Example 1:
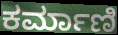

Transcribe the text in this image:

ಕರ್ಮಾಣಿ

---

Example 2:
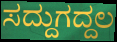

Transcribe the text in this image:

ಸದ್ದುಗದ್ದಲ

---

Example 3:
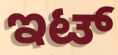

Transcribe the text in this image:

ಇಟ್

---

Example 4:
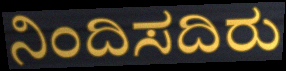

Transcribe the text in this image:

ನಿಂದಿಸದಿರು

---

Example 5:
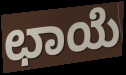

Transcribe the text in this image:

ಛಾಯೆ